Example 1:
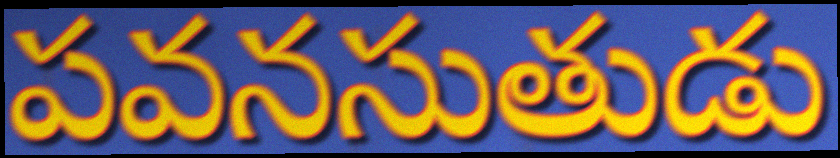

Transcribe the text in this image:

పవనసుతుడు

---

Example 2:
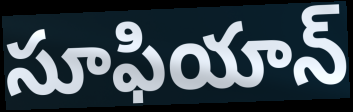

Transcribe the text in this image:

సూఫియాన్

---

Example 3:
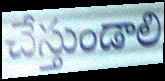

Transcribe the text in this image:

చేస్తుండాలి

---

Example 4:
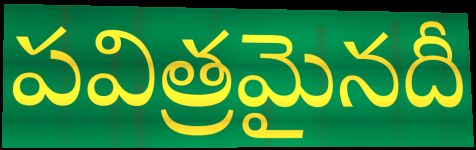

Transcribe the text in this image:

పవిత్రమైనదీ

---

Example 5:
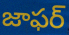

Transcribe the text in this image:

జాఫర్